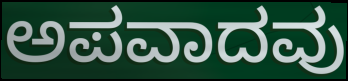
ಅಪವಾದವು